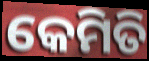
କେମିତି